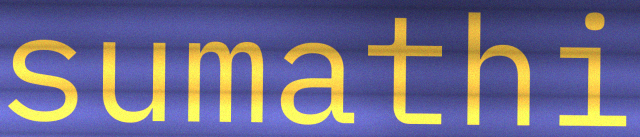
sumathi